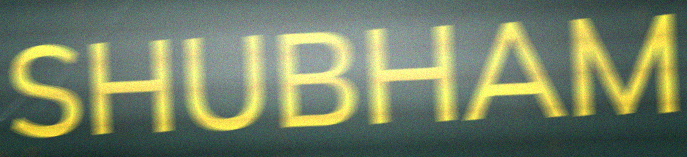
SHUBHAM